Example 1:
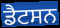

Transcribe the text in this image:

ਡੈਟਸਨ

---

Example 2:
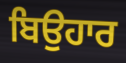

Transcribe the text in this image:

ਬਿਉਹਾਰ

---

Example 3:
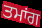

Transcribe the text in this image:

ਤਮਾਂਗ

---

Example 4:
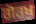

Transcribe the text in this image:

ਗੋਰਖੁ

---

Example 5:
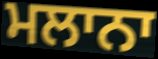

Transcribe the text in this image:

ਮਲਾਨਾ